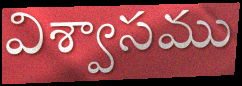
విశ్వాసము